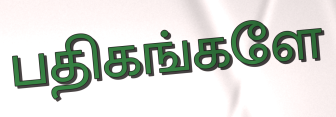
பதிகங்களே